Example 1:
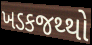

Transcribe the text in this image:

ખડકજથ્થો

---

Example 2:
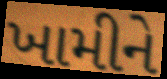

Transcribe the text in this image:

ખામીને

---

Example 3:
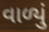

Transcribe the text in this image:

વાળ્યું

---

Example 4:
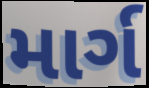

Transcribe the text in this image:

માર્ગ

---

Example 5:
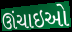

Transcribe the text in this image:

ઊંચાઇઓ